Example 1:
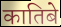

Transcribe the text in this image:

कातिबे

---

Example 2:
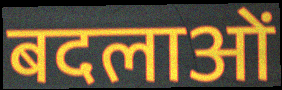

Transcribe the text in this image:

बदलाओं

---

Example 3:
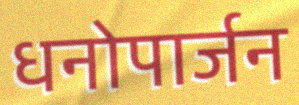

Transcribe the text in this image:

धनोपार्जन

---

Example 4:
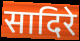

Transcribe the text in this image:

सादिरे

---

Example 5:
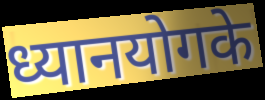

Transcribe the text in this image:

ध्यानयोगके